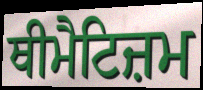
ਥੀਮੈਟਿਜ਼ਮ